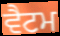
ਵੈਟਮ